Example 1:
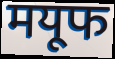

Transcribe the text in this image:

मयूफ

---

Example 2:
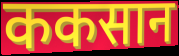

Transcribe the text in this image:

ककसान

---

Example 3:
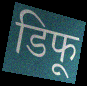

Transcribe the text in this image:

डिफू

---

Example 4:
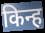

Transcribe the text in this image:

किन्ह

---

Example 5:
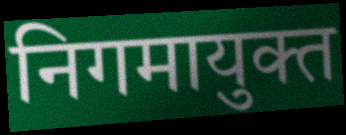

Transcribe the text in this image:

निगमायुक्त